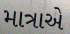
માત્રાએ